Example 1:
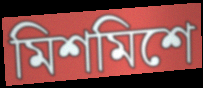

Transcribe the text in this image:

মিশমিশে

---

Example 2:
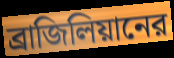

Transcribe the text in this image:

ব্রাজিলিয়ানের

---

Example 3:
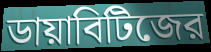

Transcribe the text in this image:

ডায়াবিটিজের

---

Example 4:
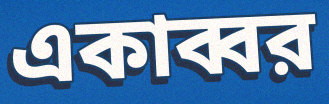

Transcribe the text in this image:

একাব্বর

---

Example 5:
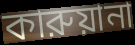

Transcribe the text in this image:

কারুয়ানা